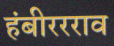
हंबीररराव